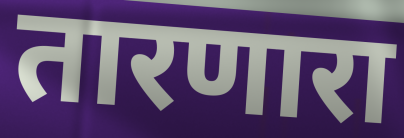
तारणारा